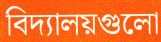
বিদ্যালয়গুলো